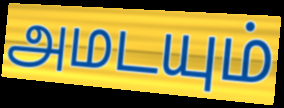
அமடயும்